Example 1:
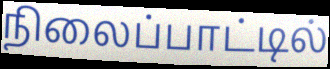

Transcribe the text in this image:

நிலைப்பாட்டில்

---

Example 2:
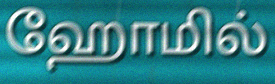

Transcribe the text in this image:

ஹோமில்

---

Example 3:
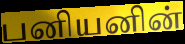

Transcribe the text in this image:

பனியனின்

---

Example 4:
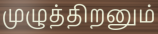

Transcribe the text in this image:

முழுத்திறனும்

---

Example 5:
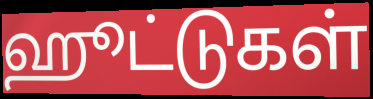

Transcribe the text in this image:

ஹூட்டுகள்